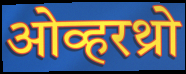
ओव्हरथ्रो